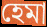
হেমা